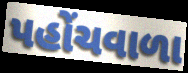
પહોંચવાળા